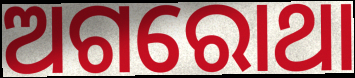
ଅଗରୋଥା